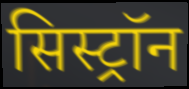
सिस्ट्रॉन